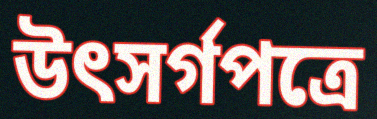
উৎসর্গপত্রে